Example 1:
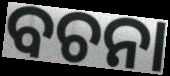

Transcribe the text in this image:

ବଚନା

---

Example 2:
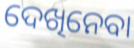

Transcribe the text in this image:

ଦେଖିନେବା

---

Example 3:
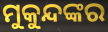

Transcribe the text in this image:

ମୁକୁନ୍ଦଙ୍କର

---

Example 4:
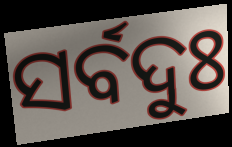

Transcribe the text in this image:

ସର୍ବଦୁଃ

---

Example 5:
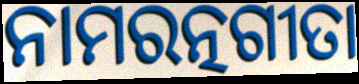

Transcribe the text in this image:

ନାମରତ୍ନଗୀତା